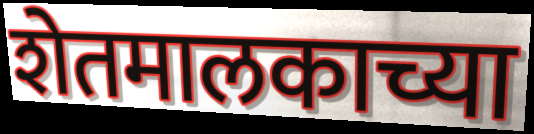
शेतमालकाच्या